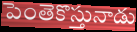
పెంతెకొస్తునాడు